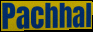
Pachhal